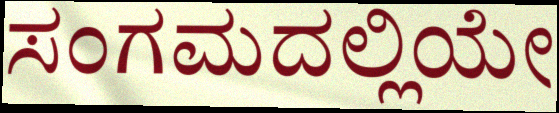
ಸಂಗಮದಲ್ಲಿಯೇ